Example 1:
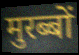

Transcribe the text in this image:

मुरब्बों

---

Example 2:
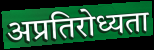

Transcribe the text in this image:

अप्रतिरोध्यता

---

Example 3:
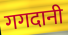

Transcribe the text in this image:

गगदानी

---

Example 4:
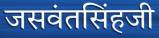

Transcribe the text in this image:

जसवंतसिंहजी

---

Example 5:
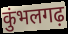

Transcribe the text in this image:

कुंभलगढ़